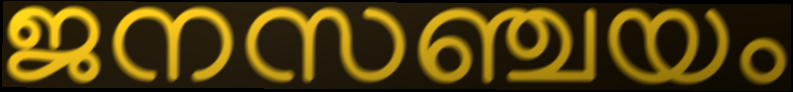
ജനസഞ്ചയം